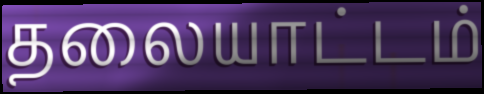
தலையாட்டம்